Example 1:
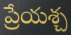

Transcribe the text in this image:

ప్రేయశ్చ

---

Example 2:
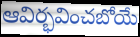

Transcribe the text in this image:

ఆవిర్భవించబోయే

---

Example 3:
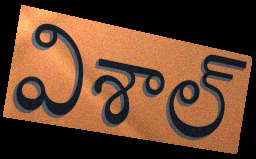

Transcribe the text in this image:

విశాల్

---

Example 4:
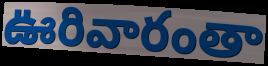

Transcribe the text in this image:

ఊరివారంతా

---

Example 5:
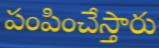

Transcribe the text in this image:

పంపించేస్తారు